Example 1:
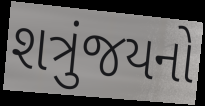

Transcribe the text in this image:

શત્રુંજયનો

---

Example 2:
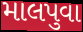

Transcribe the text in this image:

માલપુવા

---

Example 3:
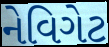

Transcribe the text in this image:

નેવિગેટ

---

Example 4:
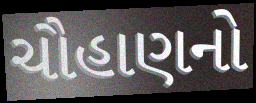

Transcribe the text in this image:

ચૌહાણનો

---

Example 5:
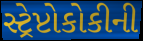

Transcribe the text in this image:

સ્ટ્રેપ્ટોકોકીની